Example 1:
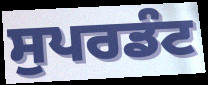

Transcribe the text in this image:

ਸੁਪਰਡੰਟ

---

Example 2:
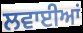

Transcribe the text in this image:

ਲਵਾਈਆਂ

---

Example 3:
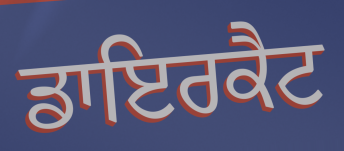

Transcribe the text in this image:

ਡਾਇਰਕੈਟ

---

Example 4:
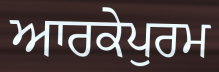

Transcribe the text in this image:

ਆਰਕੇਪੁਰਮ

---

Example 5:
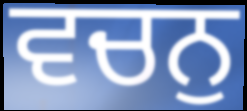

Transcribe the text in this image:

ਵਚਨੁ